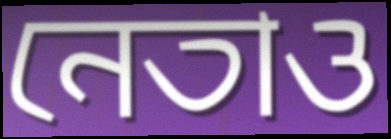
নেতাও